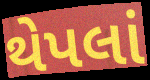
થેપલાં